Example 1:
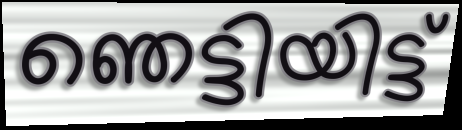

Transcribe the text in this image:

ഞെട്ടിയിട്ട്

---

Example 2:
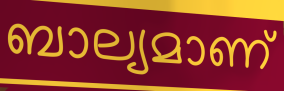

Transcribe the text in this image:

ബാല്യമാണ്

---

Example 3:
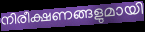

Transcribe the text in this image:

നിരീക്ഷണങ്ങളുമായി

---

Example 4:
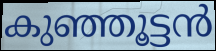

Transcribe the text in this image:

കുഞ്ഞൂട്ടൻ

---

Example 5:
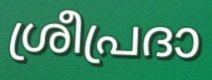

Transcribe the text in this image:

ശ്രീപ്രദാ